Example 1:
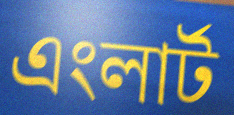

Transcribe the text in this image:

এংলার্ট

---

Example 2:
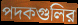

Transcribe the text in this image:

পদকগুলির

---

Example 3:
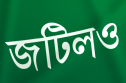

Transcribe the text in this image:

জটিলও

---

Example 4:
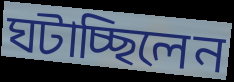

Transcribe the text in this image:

ঘটাচ্ছিলেন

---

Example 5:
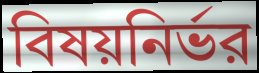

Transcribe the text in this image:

বিষয়নির্ভর